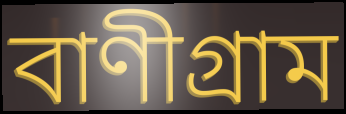
বাণীগ্রাম